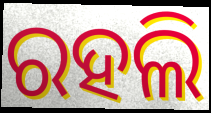
ରହଲି